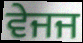
ਵੇਜਜ